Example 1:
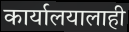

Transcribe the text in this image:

कार्यालयालाही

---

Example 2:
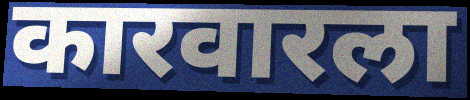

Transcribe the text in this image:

कारवारला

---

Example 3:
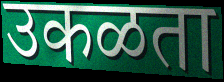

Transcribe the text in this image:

उकळता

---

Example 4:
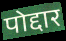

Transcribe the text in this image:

पोद्दार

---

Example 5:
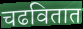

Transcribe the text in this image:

चढवितात